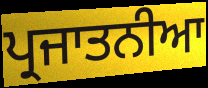
ਪ੍ਰਜਾਤਨੀਆ